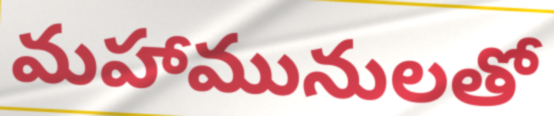
మహామునులతో